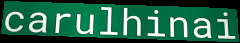
carulhinai